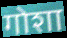
गोशा